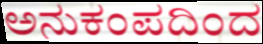
ಅನುಕಂಪದಿಂದ